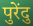
पुरेंदु